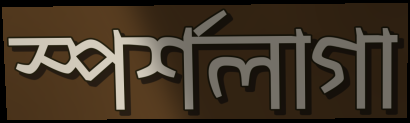
স্পর্শলাগা